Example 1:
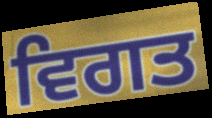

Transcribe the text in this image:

ਵਿਗਤ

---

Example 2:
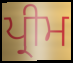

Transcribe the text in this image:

ਪ੍ਰੀਮ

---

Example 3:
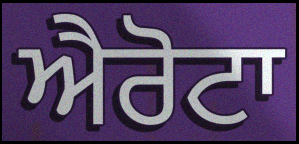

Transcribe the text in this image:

ਐਰੋਟਾ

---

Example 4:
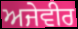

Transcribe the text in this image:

ਅਜੇਵੀਰ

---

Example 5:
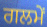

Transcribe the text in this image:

ਗਲਮੇਂ